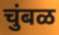
चुंबळ